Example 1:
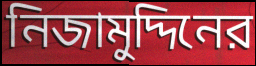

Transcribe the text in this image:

নিজামুদ্দিনের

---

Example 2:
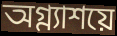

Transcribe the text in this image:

অগ্ন্যাশয়ে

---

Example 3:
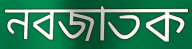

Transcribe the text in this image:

নবজাতক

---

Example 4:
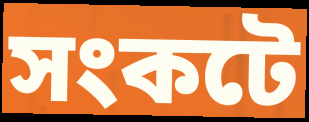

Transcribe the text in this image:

সংকটে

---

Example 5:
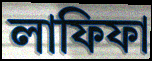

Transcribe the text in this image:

লাফিফা